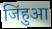
जिंहुआ